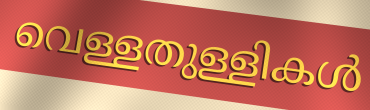
വെള്ളതുള്ളികൾ